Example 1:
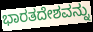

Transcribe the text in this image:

ಭಾರತದೇಶವನ್ನು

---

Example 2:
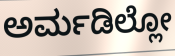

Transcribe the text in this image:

ಅರ್ಮಡಿಲ್ಲೋ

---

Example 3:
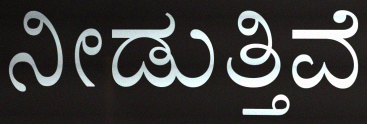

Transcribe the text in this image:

ನೀಡುತ್ತಿವೆ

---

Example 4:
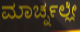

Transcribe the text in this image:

ಮಾರ್ಚ್ನಲ್ಲೇ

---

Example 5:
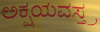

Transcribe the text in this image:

ಅಕ್ಷಯವಸ್ತ್ರ